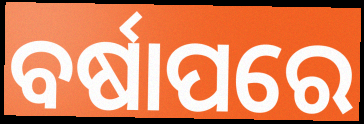
ବର୍ଷାପରେ